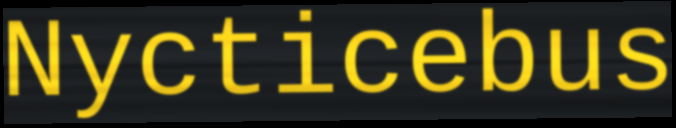
Nycticebus